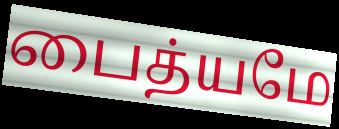
பைத்யமே